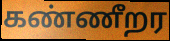
கண்ணீறர